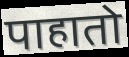
पाहातो